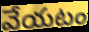
వేయటం